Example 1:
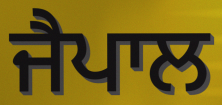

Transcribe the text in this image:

ਜੈਪਾਲ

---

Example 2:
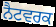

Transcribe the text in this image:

ਨੈਟਵਰਕ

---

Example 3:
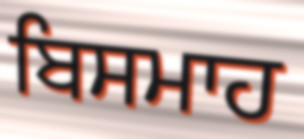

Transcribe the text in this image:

ਬਿਸਮਾਹ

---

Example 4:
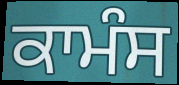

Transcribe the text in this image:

ਕਾਮੰਸ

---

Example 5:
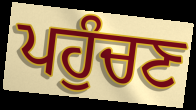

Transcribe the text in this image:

ਪਹੁੰਚਣ